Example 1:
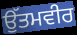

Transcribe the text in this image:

ਉੱਤਮਵੀਰ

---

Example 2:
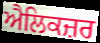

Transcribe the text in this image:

ਐਲਿਕਜ਼ਰ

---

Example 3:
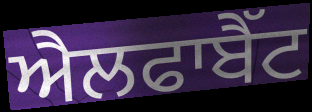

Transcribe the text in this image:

ਐਲਫਾਬੈੱਟ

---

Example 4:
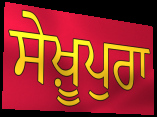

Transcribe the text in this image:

ਸੇਖ਼ੂਪੁਰਾ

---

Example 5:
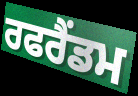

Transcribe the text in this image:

ਰਫਰੈਂਡਮ